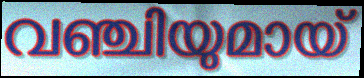
വഞ്ചിയുമായ്